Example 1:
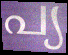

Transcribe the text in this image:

പ്യ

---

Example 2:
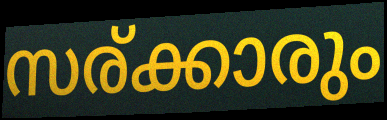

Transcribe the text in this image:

സര്ക്കാരും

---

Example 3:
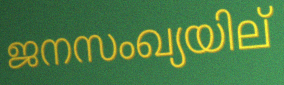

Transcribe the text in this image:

ജനസംഖ്യയില്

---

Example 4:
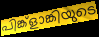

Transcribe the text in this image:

പിങ്ക്ളാങ്കിയുടെ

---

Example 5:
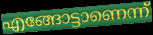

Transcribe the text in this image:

എങ്ങോട്ടാണെന്ന്